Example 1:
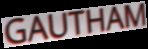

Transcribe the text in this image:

GAUTHAM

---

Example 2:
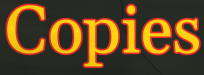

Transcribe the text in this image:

Copies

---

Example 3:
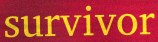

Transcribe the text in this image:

survivor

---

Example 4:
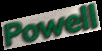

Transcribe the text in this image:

Powell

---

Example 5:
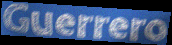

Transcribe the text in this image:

Guerrero